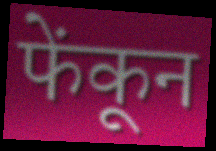
फेंकून